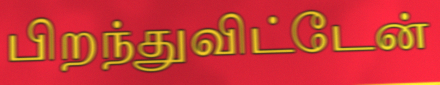
பிறந்துவிட்டேன்